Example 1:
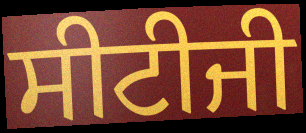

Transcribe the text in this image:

ਸੀਟੀਜੀ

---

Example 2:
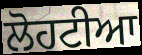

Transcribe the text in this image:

ਲੋਹਟੀਆ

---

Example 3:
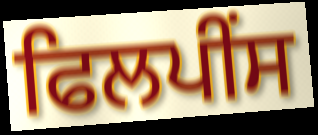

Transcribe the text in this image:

ਫਿਲਪੀਂਸ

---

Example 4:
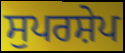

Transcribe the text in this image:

ਸੁਪਰਸ਼ੇਪ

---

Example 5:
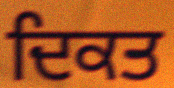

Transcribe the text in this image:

ਦਿਕਤ